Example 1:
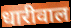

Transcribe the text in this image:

धारीवाल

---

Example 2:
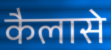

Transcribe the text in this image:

कैलासे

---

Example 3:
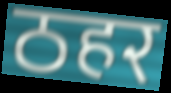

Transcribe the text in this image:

ठहर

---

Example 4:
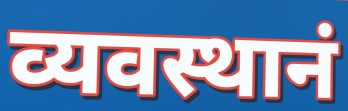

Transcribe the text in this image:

व्यवस्थानं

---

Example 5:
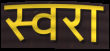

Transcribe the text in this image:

स्वरा